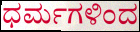
ಧರ್ಮಗಳಿಂದ